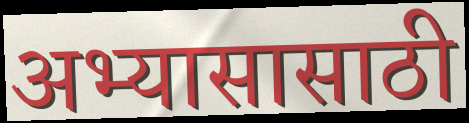
अभ्यासासाठी